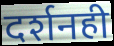
दर्शनही